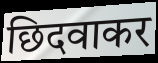
छिदवाकर